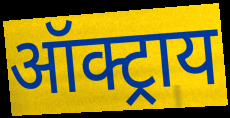
ऑक्ट्राय